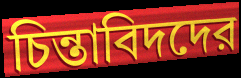
চিন্তাবিদদের